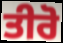
ਤੀਰੋ